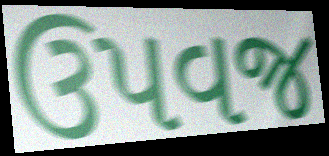
ઉપવજ્ર